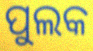
ପୁଲକ